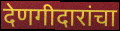
देणगीदारांचा